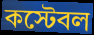
কস্টেবল